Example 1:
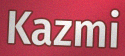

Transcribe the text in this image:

Kazmi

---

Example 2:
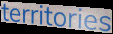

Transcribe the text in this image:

territories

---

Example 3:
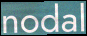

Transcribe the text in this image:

nodal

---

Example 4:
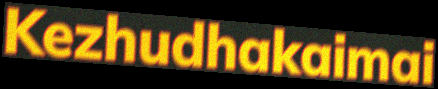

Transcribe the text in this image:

Kezhudhakaimai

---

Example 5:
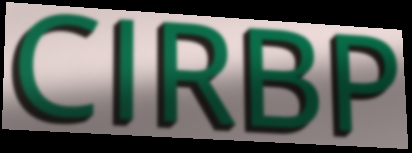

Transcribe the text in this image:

CIRBP